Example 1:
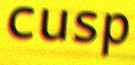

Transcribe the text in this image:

cusp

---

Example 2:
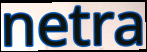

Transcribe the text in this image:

netra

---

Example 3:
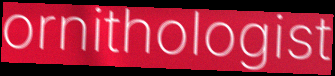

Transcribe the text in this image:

ornithologist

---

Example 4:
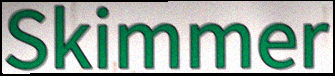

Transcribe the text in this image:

Skimmer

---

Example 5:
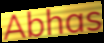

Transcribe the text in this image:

Abhas